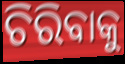
ଚିରିବାକୁ